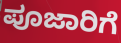
ಪೂಜಾರಿಗೆ